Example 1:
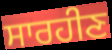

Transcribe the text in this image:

ਸਾਰਹੀਣ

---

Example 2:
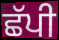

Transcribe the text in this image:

ਛੱਪੀ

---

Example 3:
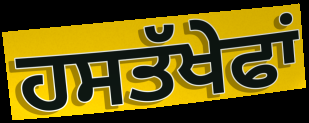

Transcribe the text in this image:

ਹਸਤੱਖੇਫਾਂ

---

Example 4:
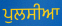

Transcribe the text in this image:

ਪੁਲਸੀਆ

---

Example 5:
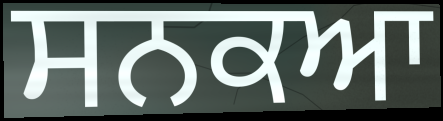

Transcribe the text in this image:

ਸਨਕਆ